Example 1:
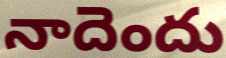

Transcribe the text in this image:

నాదెందు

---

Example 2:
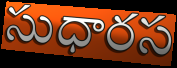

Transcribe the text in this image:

సుధారస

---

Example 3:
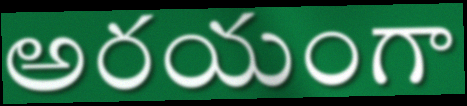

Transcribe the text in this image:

అరయంగా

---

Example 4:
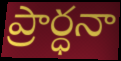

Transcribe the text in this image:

ప్రార్ధనా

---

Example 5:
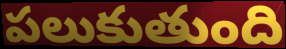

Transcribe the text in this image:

పలుకుతుంది